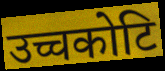
उच्चकोटि